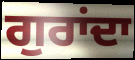
ਗੁਰਾਂਦਾ